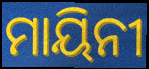
ମାୟିନୀ